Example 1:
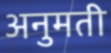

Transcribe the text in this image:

अनुमती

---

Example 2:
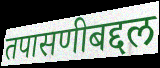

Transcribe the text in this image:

तपासणीबद्दल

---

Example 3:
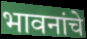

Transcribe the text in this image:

भावनांचे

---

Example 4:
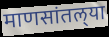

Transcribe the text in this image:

माणसांतल्या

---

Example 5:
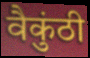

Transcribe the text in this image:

वैकुंठी